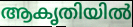
ആകൃതിയിൽ